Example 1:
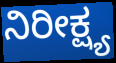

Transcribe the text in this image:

ನಿರೀಕ್ಷ್ಯ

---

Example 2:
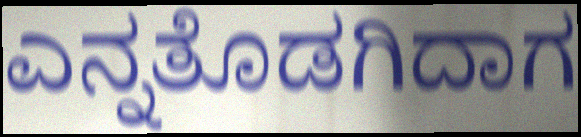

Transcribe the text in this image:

ಎನ್ನತೊಡಗಿದಾಗ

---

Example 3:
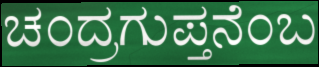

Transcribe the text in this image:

ಚಂದ್ರಗುಪ್ತನೆಂಬ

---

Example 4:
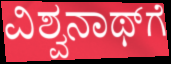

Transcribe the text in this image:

ವಿಶ್ವನಾಥ್‌ಗೆ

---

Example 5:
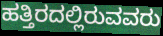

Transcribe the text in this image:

ಹತ್ತಿರದಲ್ಲಿರುವವರು